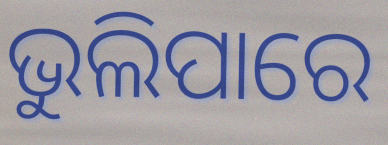
ଭୁଲିପାରେ